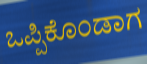
ಒಪ್ಪಿಕೊಂಡಾಗ